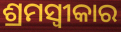
ଶ୍ରମସ୍ୱୀକାର